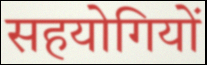
सहयोगियों